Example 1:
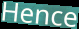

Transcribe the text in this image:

Hence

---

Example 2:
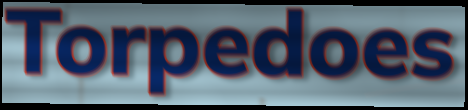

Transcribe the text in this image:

Torpedoes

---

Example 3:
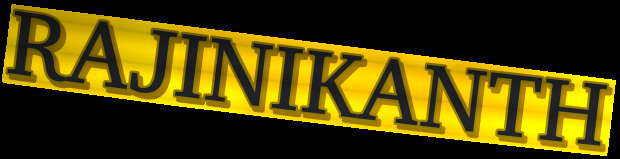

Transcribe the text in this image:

RAJINIKANTH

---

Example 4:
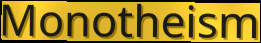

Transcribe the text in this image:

Monotheism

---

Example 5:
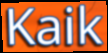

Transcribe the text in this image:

Kaik